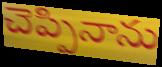
చెప్పినాను